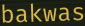
bakwas